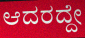
ಆದರದ್ದೇ